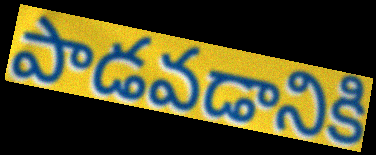
పాడవడానికి